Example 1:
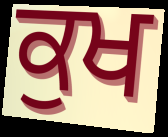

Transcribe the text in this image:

ਕੁਖ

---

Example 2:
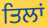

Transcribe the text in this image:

ਤਿਲਾਂ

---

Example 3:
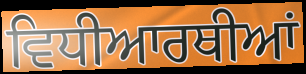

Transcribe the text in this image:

ਵਿਧੀਆਰਥੀਆਂ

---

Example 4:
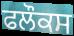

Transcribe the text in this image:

ਫਲੌਕਸ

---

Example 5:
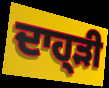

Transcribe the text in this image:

ਦਾਹ੍ੜੀ